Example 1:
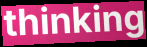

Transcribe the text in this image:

thinking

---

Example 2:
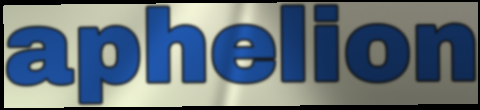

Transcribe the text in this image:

aphelion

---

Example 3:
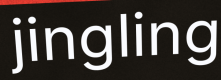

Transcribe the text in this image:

jingling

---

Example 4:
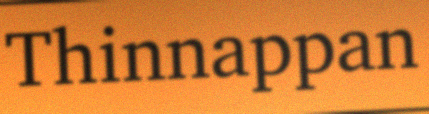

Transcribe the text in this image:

Thinnappan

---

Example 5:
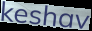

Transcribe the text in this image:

keshav